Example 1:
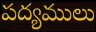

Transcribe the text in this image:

పద్యములు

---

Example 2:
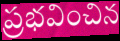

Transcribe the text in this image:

ప్రభవించిన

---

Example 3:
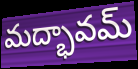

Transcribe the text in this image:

మద్భావమ్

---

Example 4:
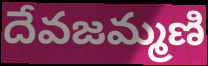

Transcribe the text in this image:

దేవజమ్మణి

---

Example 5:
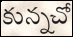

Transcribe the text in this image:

కున్నచో